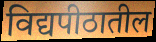
विद्यपीठातील